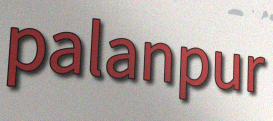
palanpur